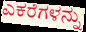
ಎಕರೆಗಳನ್ನು